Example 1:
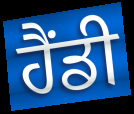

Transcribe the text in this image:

ਹੈਂਡੀ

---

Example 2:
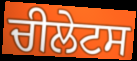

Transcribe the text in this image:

ਚੀਲੇਟਸ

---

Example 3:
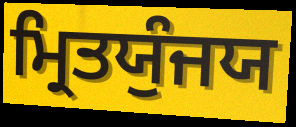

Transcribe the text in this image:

ਮ੍ਰਿਤਯੁੰਜਯ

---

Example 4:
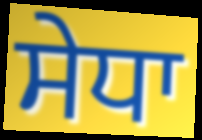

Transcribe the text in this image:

ਸੇਧਾ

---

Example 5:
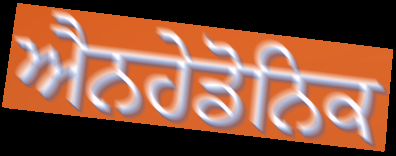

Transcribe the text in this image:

ਐਨਹੇਡੋਨਿਕ